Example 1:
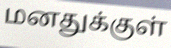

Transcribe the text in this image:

மனதுக்குள்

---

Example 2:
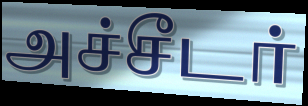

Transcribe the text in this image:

அச்சீடர்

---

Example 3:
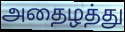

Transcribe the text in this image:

அதைழத்து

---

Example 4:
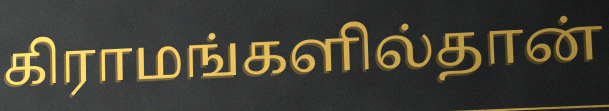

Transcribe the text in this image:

கிராமங்களில்தான்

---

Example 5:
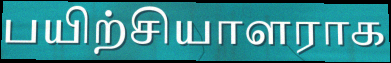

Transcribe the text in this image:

பயிற்சியாளராக